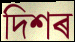
দিশৰ